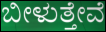
ಬೀಳುತ್ತೇವೆ